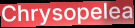
Chrysopelea